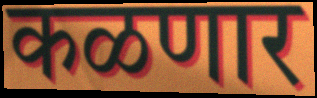
कळणार